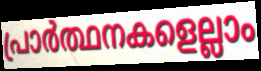
പ്രാർത്ഥനകളെല്ലാം